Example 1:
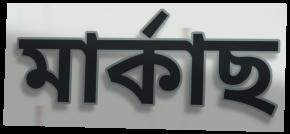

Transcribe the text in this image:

মাৰ্কাছ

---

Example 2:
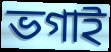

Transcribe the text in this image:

ভগাই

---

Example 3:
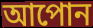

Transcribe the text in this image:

আপোন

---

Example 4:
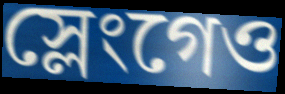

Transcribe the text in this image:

স্লেংগেও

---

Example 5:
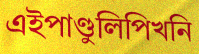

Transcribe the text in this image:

এইপাণ্ডুলিপিখনি